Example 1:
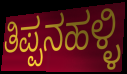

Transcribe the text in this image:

ತಿಪ್ಪನಹಳ್ಳಿ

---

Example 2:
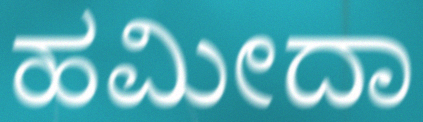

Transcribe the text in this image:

ಹಮೀದಾ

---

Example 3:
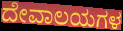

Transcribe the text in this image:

ದೇವಾಲಯಗಳ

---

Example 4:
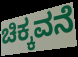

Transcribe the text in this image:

ಚಿಕ್ಕವನೆ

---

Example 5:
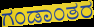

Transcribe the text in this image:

ಗಂಡಾಂತರ